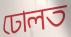
ঢোলত